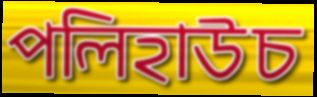
পলিহাউচ